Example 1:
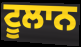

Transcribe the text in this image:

ਟੂਲਾਨ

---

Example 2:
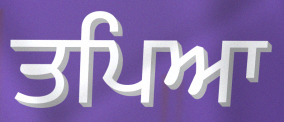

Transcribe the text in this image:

ਤਪਿਆ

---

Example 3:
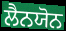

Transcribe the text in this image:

ਲੈਨਯੋਨ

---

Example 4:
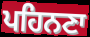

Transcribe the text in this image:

ਪਹਿਨਣਾ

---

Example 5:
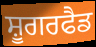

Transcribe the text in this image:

ਸ਼ੂਗਰਫੈਡ